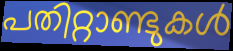
പതിറ്റാണ്ടുകൾ